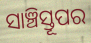
ସାଞ୍ଚିସ୍ତୂପର